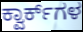
ಕ್ವಾರ್ಕ್‌ಗಳ